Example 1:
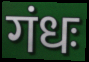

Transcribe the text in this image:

गंधः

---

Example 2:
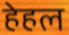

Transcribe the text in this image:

हेहल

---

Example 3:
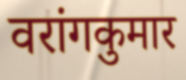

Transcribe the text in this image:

वरांगकुमार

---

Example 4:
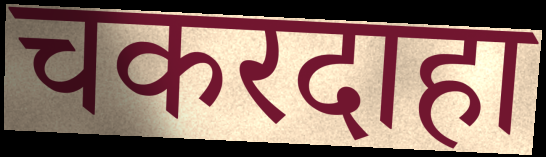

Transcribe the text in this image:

चकरदाहा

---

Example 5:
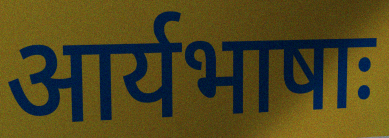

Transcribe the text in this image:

आर्यभाषाः